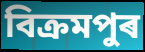
বিক্ৰমপুৰ